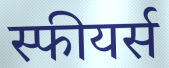
स्फीयर्स